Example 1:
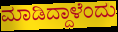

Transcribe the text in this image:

ಮಾಡಿದ್ದಾಳೆಂದು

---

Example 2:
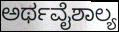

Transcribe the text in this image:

ಅರ್ಥವೈಶಾಲ್ಯ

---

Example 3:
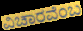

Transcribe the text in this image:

ವಿಚಾರವೆಂಬ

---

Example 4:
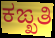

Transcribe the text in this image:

ಕಙ್ಖತಿ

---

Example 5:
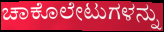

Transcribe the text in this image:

ಚಾಕೊಲೇಟುಗಳನ್ನು